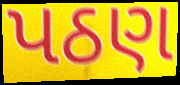
પઠણ